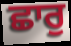
ਛਾਰੁ